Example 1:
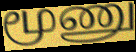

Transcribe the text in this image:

மூணு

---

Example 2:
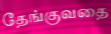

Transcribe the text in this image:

தேங்குவதை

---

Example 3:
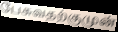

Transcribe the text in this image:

பேசுவதற்குமுன்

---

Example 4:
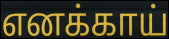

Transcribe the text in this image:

எனக்காய்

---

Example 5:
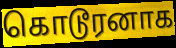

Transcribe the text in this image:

கொடூரனாக